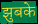
झुबके